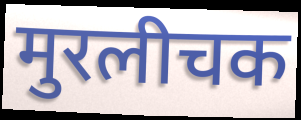
मुरलीचक